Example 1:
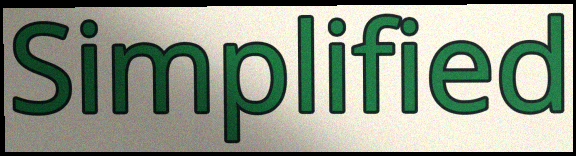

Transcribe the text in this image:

Simplified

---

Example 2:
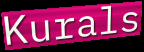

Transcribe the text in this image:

Kurals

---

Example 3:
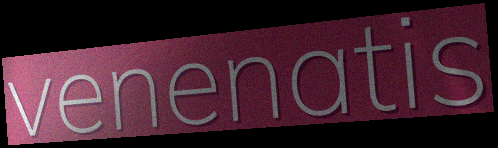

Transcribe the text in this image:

venenatis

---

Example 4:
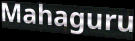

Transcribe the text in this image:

Mahaguru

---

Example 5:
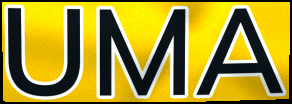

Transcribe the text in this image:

UMA